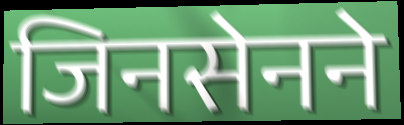
जिनसेनने